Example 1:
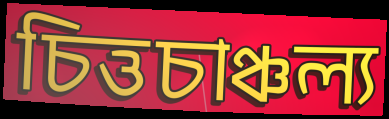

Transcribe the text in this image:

চিত্তচাঞ্চল্য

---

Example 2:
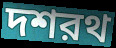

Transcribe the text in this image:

দশরথ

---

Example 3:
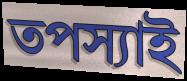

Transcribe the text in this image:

তপস্যাই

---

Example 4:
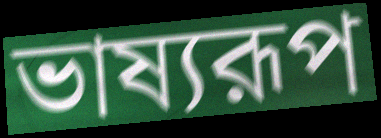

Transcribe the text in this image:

ভাষ্যরূপ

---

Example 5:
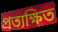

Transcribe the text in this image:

প্রত্যক্ষিত